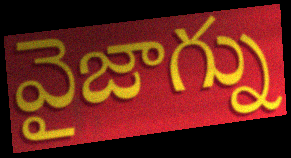
వైజాగ్ను